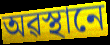
অৱস্থানে